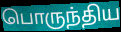
பொருந்திய